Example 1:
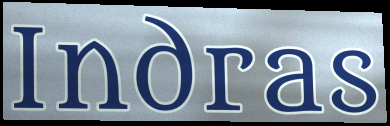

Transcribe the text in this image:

Indras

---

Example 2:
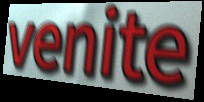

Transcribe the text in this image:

venite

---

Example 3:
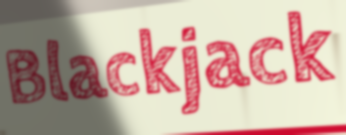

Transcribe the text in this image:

Blackjack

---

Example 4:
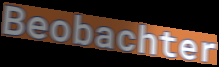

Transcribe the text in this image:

Beobachter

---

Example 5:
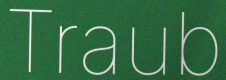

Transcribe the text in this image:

Traub